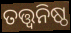
ତତ୍ତ୍ୱନିଷ୍ଠ